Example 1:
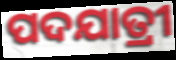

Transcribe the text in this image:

ପଦଯାତ୍ରୀ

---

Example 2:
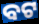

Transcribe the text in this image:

ବଟ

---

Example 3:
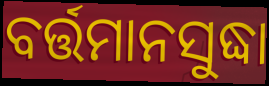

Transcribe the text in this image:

ବର୍ତ୍ତମାନସୁଦ୍ଧା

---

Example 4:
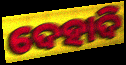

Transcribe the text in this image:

ଦେହାଦି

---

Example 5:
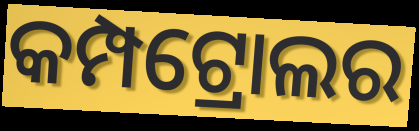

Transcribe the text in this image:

କମ୍ପଟ୍ରୋଲର